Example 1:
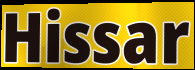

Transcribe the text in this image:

Hissar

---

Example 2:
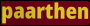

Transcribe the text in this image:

paarthen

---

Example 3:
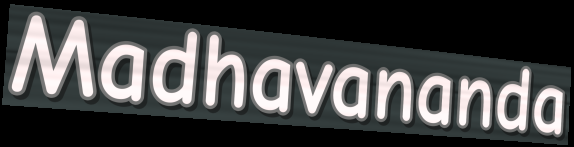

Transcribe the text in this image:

Madhavananda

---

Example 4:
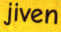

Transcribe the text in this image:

jiven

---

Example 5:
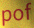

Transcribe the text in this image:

pof